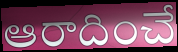
ఆరాదించే